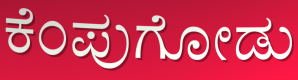
ಕೆಂಪುಗೋಡು